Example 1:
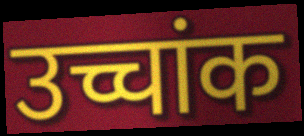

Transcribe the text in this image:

उच्चांक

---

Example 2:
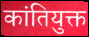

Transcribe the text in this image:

कांतियुक्त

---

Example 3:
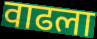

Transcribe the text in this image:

वाढला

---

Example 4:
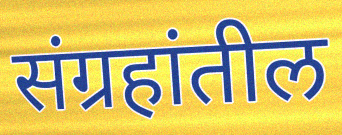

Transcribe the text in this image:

संग्रहांतील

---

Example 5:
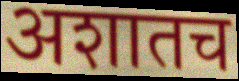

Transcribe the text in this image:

अशातच